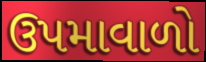
ઉપમાવાળો